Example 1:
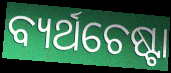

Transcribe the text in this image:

ବ୍ୟର୍ଥଚେଷ୍ଟା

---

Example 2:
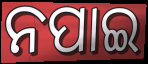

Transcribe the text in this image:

ନପାଇ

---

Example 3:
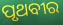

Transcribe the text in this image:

ପୃଥବୀର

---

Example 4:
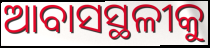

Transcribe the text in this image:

ଆବାସସ୍ଥଳୀକୁ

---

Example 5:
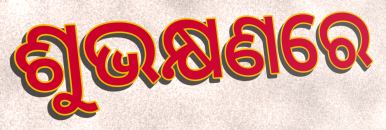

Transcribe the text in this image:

ଶୁଭକ୍ଷଣରେ